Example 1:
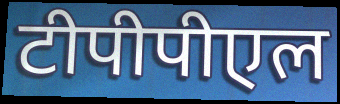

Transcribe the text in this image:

टीपीपीएल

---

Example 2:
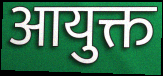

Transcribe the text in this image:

आयुक्त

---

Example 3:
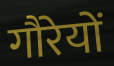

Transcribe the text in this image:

गौरेयों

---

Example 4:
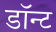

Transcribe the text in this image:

डॉन्ट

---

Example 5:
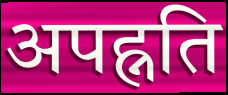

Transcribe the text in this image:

अपह्नति